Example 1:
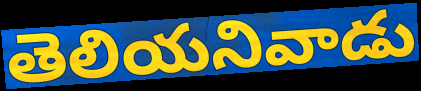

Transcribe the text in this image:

తెలియనివాడు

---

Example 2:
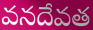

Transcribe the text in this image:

వనదేవత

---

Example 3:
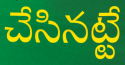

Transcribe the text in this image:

చేసినట్టే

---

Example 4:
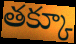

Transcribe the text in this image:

తక్కూ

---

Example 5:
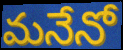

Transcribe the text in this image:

మనేనో